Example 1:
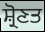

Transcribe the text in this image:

ਸ਼੍ਰੋਣਤ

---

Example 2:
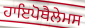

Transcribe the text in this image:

ਹਾਇਪੋਥੈਲੇਮਸ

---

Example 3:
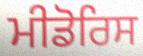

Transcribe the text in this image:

ਮੀਡੋਰਿਸ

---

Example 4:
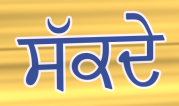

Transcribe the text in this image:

ਸੱਕਦੇ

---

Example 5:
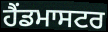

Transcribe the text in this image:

ਹੈਂਡਮਾਸਟਰ